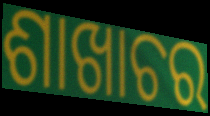
ଶାଖାଚର